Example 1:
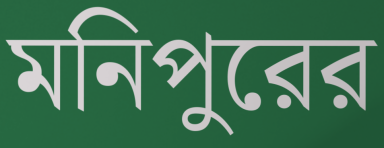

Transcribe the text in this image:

মনিপুরের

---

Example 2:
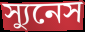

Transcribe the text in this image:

স্যুনেস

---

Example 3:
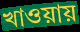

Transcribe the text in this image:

খাওয়ায়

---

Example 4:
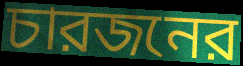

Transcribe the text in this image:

চারজনের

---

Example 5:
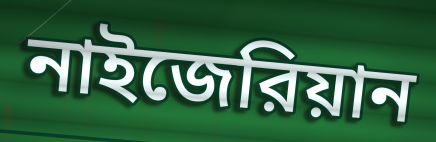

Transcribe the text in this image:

নাইজেরিয়ান